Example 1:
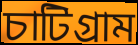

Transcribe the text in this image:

চাটিগ্রাম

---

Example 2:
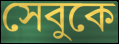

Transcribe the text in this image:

সেবুকে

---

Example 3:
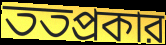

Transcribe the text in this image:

ততপ্রকার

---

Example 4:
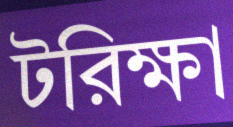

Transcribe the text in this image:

টরিক্ষা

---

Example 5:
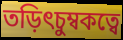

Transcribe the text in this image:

তড়িৎচুম্বকত্বে